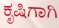
ಕೃಷಿಗಾಗಿ